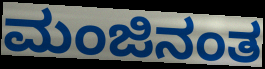
ಮಂಜಿನಂತ